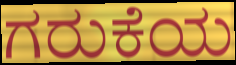
ಗರುಕೆಯ